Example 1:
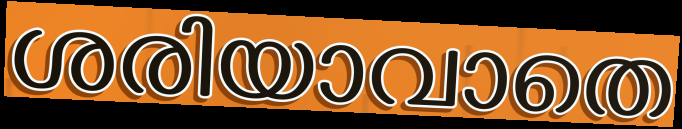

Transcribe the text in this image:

ശരിയാവാതെ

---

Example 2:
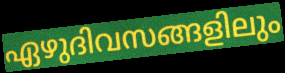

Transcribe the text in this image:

ഏഴുദിവസങ്ങളിലും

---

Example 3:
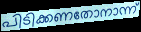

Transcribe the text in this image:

പിടിക്കണതോനാന്ന്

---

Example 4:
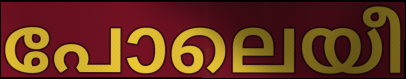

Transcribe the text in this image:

പോലെയീ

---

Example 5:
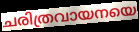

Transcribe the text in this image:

ചരിത്രവായനയെ